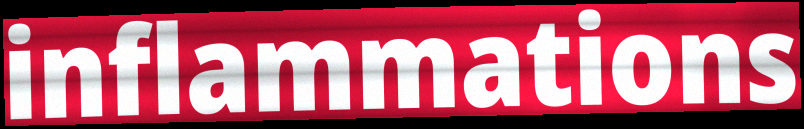
inflammations